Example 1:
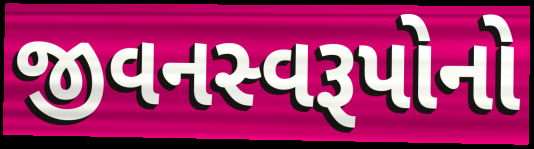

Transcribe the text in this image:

જીવનસ્વરૂપોનો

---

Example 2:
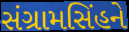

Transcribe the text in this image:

સંગ્રામસિંહને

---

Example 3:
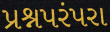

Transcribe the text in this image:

પ્રશ્નપરંપરા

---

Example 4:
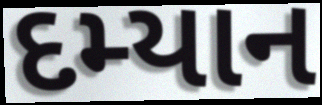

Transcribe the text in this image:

દમ્યાન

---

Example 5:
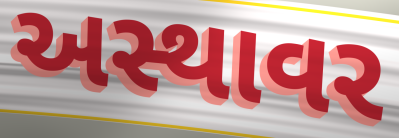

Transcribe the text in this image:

અસ્થાવર